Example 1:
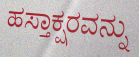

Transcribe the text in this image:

ಹಸ್ತಾಕ್ಷರವನ್ನು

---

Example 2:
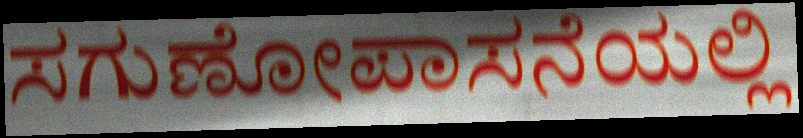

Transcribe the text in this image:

ಸಗುಣೋಪಾಸನೆಯಲ್ಲಿ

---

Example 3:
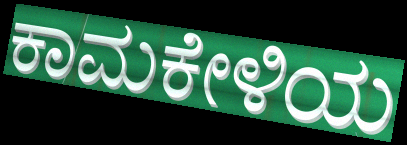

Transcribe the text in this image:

ಕಾಮಕೇಳಿಯ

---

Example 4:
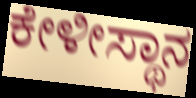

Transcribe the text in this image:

ಕೇಳೀಸ್ಥಾನ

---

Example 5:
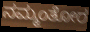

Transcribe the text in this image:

ನಮ್ಮಂತೋರ